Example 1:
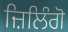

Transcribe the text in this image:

ਜ਼ਿਲਿੰਗੋ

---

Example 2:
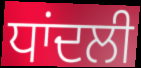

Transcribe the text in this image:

ਧਾਂਦਲੀ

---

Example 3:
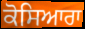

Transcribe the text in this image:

ਕੋਸਿਆਰਾ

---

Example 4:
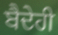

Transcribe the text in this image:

ਬੈਦੇਹੀ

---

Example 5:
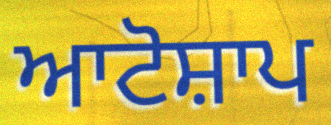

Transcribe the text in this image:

ਆਟੋਸ਼ਾਪ